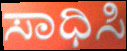
ಸಾಧಿಸಿ